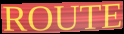
ROUTE